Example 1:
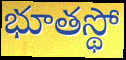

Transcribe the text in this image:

భూతస్థో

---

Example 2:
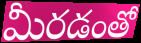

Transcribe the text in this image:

మీరడంతో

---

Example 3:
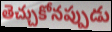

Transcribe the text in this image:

తెచ్చుకోనప్పుడు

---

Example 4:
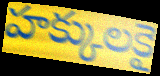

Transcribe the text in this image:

హక్కులకై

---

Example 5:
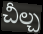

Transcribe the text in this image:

చీల్చ